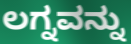
ಲಗ್ನವನ್ನು